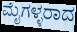
ಮೈಗಳ್ಳರಾದ